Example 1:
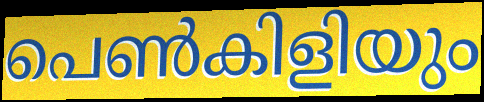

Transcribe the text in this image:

പെൺകിളിയും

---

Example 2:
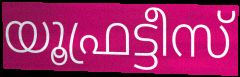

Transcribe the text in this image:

യൂഫ്രട്ടീസ്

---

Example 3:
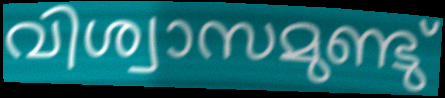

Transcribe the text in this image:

വിശ്വാസമുണ്ടു്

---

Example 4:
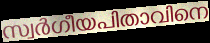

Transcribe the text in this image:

സ്വർഗീയപിതാവിനെ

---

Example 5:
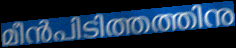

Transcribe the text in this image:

മീൻപിടിത്തത്തിനു